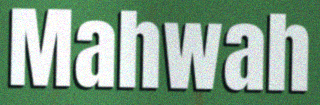
Mahwah